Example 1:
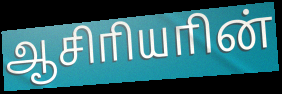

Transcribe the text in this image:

ஆசிரியரின்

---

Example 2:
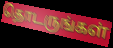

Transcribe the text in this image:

தொடருங்கள்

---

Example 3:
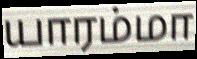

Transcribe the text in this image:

யாரம்மா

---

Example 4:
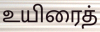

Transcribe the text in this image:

உயிரைத்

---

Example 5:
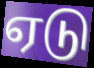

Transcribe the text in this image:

ஏடு